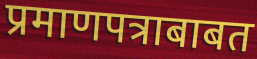
प्रमाणपत्राबाबत